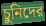
চুনিদের